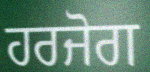
ਹਰਜੋਗ